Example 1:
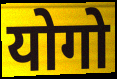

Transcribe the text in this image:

योगो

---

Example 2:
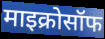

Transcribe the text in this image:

माइक्रोसॉफ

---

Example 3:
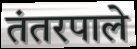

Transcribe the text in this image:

तंतरपाले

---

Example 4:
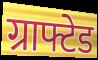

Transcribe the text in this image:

ग्राफ्टेड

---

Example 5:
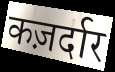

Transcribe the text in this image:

कज़र्दार